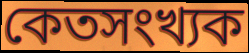
কেতসংখ্যক